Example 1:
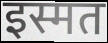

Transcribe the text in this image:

इस्मत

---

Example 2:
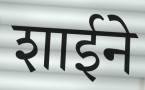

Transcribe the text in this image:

शाईने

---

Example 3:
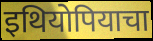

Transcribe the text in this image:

इथियोपियाचा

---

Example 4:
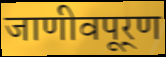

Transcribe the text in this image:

जाणीवपूर्ण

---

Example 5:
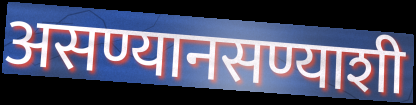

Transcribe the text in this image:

असण्यानसण्याशी